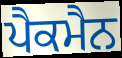
ਪੈਕਮੈਨ